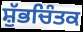
ਸ਼ੁੱਭਚਿੰਤਕ